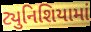
ટ્યુનિશિયામાં